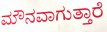
ಮೌನವಾಗುತ್ತಾರೆ